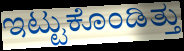
ಇಟ್ಟುಕೊಂಡಿತ್ತು